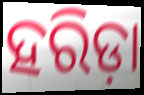
ହରିଡ଼ା